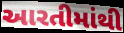
આરતીમાંથી